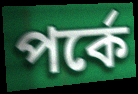
পর্কে